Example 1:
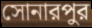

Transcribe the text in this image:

সোনারপুর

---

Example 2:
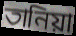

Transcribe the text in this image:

তানিয়া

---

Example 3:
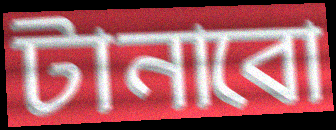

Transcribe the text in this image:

টানাবো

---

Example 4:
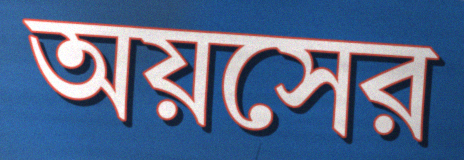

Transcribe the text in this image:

অয়সের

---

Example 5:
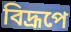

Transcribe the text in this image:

বিদ্রূপে